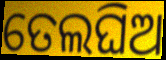
ତେଲଘିଅ